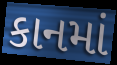
કાનમાં